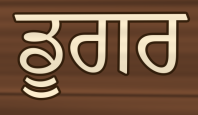
ਡੂਗਰ